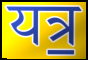
यत्र॒